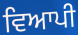
ਵਿਆਪੀ